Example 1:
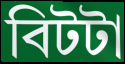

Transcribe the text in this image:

বিটটা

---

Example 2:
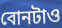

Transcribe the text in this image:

বোনটাও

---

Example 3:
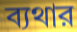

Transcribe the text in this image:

ব্যথার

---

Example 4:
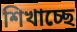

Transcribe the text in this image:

শিখাচ্ছে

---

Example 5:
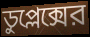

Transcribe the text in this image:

ডুপ্লেক্সের